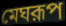
মেঘরূপ